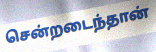
சென்றடைந்தான்